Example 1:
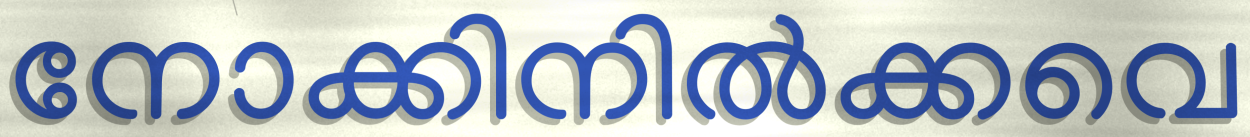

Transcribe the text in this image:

നോക്കിനിൽക്കവെ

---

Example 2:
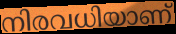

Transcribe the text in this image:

നിരവധിയാണ്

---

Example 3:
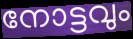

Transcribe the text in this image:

നോട്ടവും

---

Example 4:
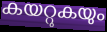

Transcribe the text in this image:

കയറ്റുകയും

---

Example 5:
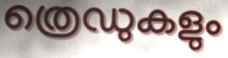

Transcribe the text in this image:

ത്രെഡുകളും